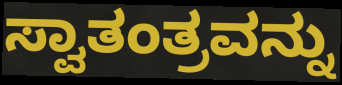
ಸ್ವಾತಂತ್ರವನ್ನು